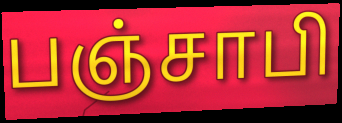
பஞ்சாபி